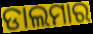
ଡାଲମାର